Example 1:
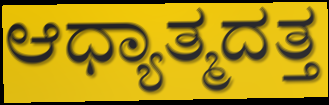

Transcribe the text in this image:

ಆಧ್ಯಾತ್ಮದತ್ತ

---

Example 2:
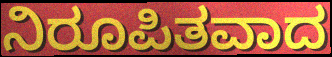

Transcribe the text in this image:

ನಿರೂಪಿತವಾದ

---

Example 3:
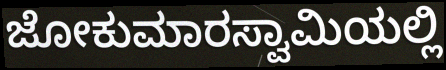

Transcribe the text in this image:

ಜೋಕುಮಾರಸ್ವಾಮಿಯಲ್ಲಿ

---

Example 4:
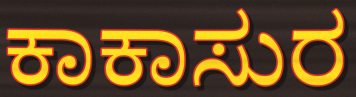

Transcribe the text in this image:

ಕಾಕಾಸುರ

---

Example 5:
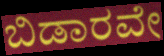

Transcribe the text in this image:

ಬಿಡಾರವೇ